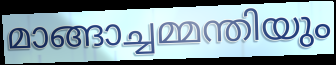
മാങ്ങാച്ചമ്മന്തിയും